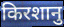
किरशानु